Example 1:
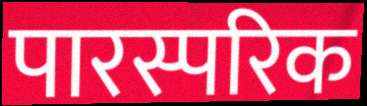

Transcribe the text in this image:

पारस्परिक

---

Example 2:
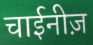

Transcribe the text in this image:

चाईनीज़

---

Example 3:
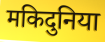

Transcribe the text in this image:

मकिदुनिया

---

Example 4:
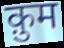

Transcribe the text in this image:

क़ुम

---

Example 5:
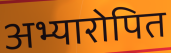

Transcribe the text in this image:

अभ्यारोपित